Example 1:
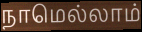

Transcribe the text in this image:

நாமெல்லாம்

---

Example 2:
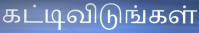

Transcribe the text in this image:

கட்டிவிடுங்கள்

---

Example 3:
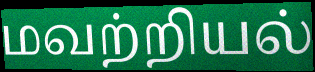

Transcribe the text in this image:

மவற்றியல்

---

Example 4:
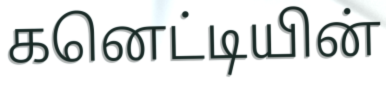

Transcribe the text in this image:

கனெட்டியின்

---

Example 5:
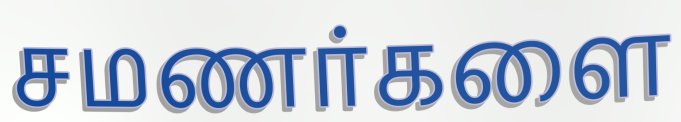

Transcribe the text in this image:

சமணர்களை